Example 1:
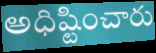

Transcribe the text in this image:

అధిష్టించారు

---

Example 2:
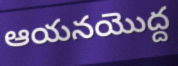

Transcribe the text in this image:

ఆయనయొద్ద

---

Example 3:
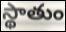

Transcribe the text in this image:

స్థాతుం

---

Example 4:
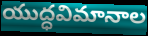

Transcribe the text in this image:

యుద్ధవిమానాల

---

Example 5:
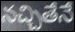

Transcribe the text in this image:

నచ్చితేనే